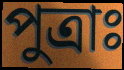
পুত্রাঃ